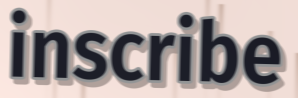
inscribe